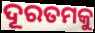
ଦୂରତମକୁ